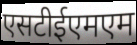
एसटीईएमएम